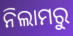
ନିଲାମରୁ